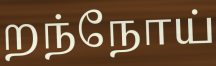
றந்நோய்